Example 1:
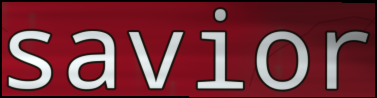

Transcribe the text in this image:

savior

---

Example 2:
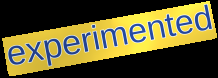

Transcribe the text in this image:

experimented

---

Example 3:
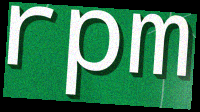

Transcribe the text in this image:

rpm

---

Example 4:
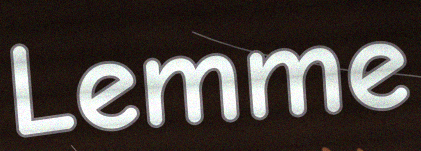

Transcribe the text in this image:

Lemme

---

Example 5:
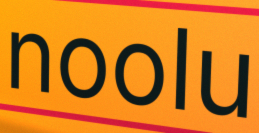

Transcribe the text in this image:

noolu